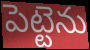
పెట్టెను